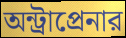
অন্ট্রাপ্রেনার